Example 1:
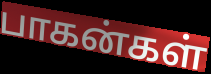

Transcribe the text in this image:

பாகன்கள்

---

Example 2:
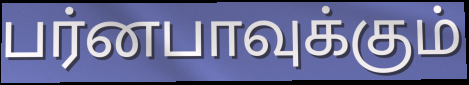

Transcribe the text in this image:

பர்னபாவுக்கும்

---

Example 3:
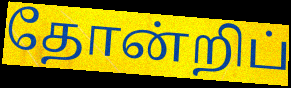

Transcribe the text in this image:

தோன்றிப்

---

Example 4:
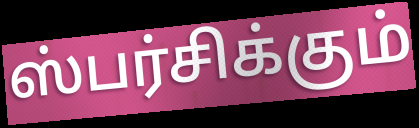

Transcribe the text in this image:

ஸ்பர்சிக்கும்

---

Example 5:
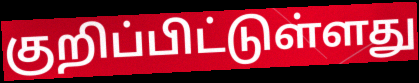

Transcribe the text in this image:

குறிப்பிட்டுள்ளது